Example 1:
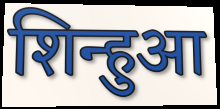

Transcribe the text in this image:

शिन्हुआ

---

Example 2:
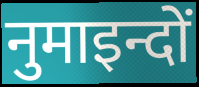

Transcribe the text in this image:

नुमाइन्दों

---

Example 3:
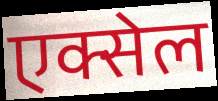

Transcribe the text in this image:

एक्सेल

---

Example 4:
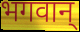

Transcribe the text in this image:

भगवान्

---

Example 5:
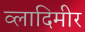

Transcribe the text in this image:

व्लादिमीर